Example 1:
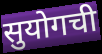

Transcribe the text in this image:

सुयोगची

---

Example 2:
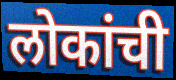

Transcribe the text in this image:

लोकांची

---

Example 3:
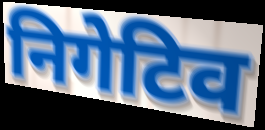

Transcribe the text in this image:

निगेटिव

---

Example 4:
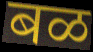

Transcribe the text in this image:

बळ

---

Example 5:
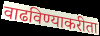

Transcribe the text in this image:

वाढविण्याकरीता